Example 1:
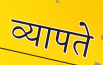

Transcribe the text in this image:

व्यापते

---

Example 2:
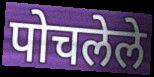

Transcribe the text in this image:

पोचलेले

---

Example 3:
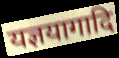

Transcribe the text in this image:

यज्ञयागादि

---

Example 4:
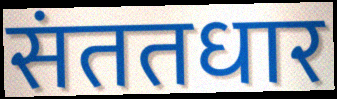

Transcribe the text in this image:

संततधार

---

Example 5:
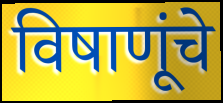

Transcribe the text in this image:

विषाणूंचे